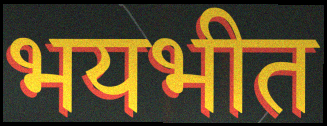
भयभीत